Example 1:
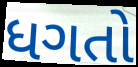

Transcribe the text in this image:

ધગતો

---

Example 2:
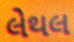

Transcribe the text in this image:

લેથલ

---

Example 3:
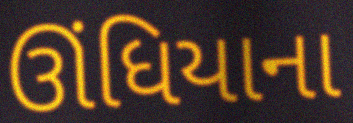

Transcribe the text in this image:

ઊંધિયાના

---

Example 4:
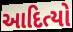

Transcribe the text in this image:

આદિત્યો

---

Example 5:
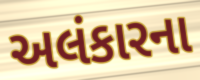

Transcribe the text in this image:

અલંકારના